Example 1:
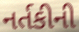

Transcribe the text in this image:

નર્તકીની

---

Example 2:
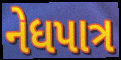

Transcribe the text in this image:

નેધપાત્ર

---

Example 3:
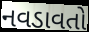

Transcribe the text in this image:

નવડાવતો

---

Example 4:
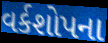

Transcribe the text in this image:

વર્કશોપના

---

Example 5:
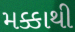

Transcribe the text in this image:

મક્કાથી